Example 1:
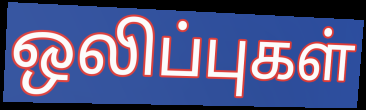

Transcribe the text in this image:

ஒலிப்புகள்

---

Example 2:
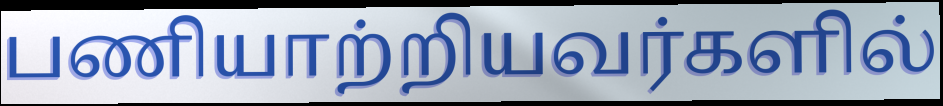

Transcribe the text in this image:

பணியாற்றியவர்களில்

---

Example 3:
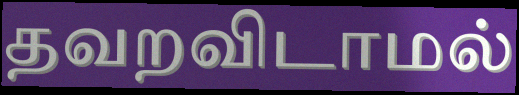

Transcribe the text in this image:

தவறவிடாமல்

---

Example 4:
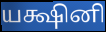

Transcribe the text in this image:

யக்ஷினி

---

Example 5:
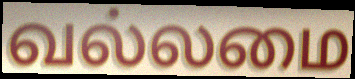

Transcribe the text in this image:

வல்லமை